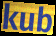
kub